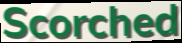
Scorched